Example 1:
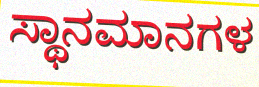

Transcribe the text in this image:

ಸ್ಥಾನಮಾನಗಳ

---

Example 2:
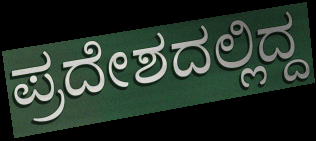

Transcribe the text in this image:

ಪ್ರದೇಶದಲ್ಲಿದ್ದ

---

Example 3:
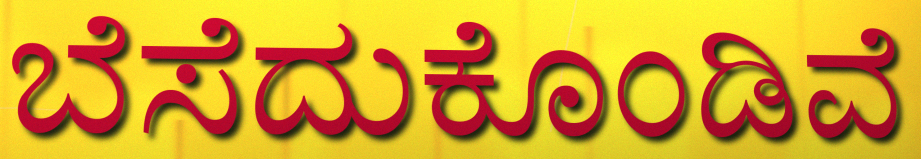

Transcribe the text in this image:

ಬೆಸೆದುಕೊಂಡಿವೆ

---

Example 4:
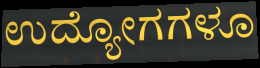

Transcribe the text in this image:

ಉದ್ಯೋಗಗಳೂ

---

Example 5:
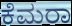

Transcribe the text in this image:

ಕೆಮರಾ